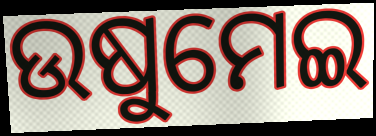
ଉଷୁମେଇ